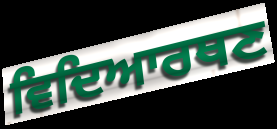
ਵਿਦਿਆਰਥਣ